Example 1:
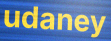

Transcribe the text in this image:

udaney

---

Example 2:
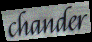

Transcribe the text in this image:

chander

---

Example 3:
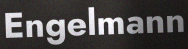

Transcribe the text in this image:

Engelmann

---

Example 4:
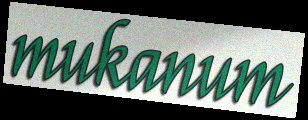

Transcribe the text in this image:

mukanum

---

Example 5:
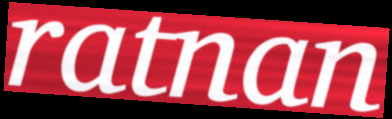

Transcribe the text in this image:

ratnan